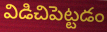
విడిచిపెట్టడం